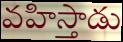
వహిస్తాడు